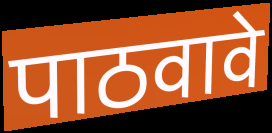
पाठवावे